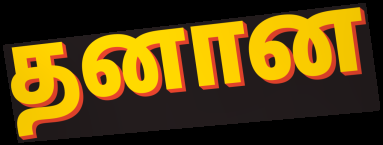
தனான